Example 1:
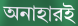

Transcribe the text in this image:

অনাহারই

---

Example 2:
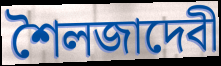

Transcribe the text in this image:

শৈলজাদেবী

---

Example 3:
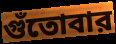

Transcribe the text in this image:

গুঁতোবার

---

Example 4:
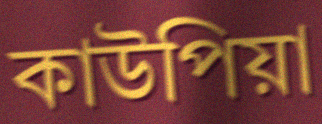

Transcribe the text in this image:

কাউপিয়া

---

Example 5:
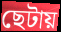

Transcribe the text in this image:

ছেটায়